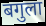
बगुला